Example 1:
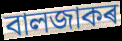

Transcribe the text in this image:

বালজাকৰ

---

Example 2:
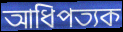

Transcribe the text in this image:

আধিপত্যক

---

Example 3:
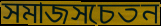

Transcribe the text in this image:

সমাজসচেতন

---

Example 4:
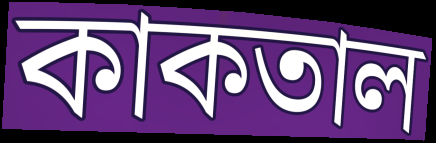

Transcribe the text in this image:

কাকতাল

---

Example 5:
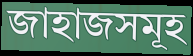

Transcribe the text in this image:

জাহাজসমূহ